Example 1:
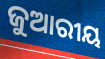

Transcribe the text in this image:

ଜୁଆରୀୟ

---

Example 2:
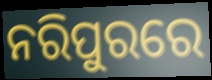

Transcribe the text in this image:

ନରିପୁରରେ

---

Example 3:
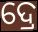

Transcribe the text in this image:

ଦ୍ରେ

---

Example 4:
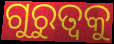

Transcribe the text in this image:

ଗୁରୁତ୍ବକୁ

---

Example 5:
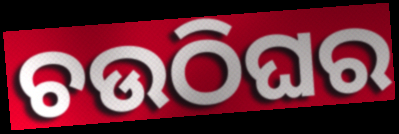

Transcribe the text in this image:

ଚଉଠିଘର